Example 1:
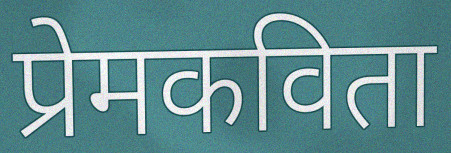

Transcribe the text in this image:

प्रेमकविता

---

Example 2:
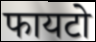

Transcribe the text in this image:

फायटो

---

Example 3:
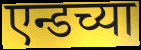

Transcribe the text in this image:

एन्डच्या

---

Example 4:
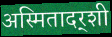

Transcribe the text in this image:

अस्मितादर्शी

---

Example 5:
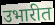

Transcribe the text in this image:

उभारीत